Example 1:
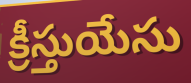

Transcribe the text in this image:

క్రీస్తుయేసు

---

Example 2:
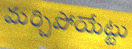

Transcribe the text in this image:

మర్చిపోయేట్టు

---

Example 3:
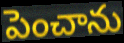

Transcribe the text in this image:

పెంచాను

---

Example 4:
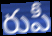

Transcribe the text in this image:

రుపీ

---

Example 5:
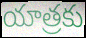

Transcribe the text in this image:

యాత్రకు